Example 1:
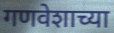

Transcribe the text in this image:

गणवेशाच्या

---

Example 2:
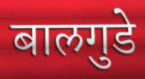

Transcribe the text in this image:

बालगुडे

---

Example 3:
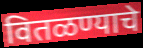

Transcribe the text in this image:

वितळण्याचे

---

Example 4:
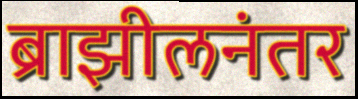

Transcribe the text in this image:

ब्राझीलनंतर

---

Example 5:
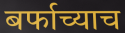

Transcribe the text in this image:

बर्फाच्याच